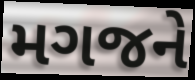
મગજને